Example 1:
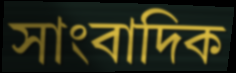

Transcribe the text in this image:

সাংবাদিক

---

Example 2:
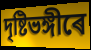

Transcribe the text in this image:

দৃষ্টিভঙ্গীৰে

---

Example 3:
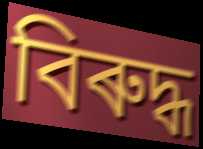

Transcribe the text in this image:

বিৰুদ্ধ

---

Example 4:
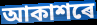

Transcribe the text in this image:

আকাশৰে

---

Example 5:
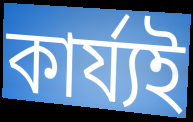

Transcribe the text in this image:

কাৰ্য্যই